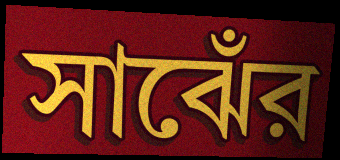
সাঝেঁর